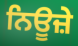
ਨਿਊਜ਼ੇ